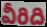
వీరిది